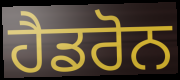
ਹੈਡਰੋਨ